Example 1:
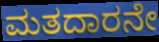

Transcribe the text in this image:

ಮತದಾರನೇ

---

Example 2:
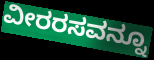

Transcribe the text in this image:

ವೀರರಸವನ್ನೂ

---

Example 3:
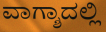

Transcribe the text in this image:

ವಾಗ್ಶಾದಲ್ಲಿ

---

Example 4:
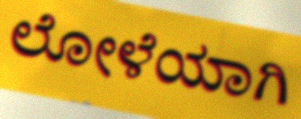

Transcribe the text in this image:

ಲೋಳೆಯಾಗಿ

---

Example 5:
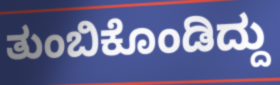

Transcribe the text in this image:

ತುಂಬಿಕೊಂಡಿದ್ದು